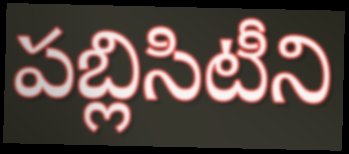
పబ్లిసిటీని